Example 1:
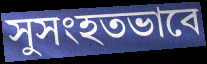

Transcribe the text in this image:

সুসংহতভাবে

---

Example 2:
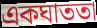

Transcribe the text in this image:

একঘাততা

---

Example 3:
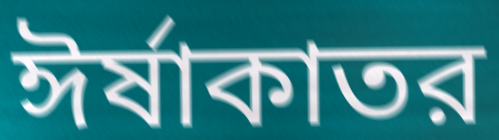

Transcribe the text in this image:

ঈর্ষাকাতর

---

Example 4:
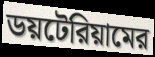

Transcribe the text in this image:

ডয়টেরিয়ামের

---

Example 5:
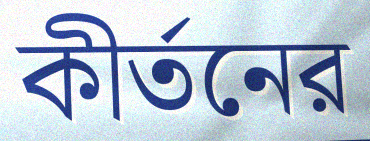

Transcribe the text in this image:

কীর্তনের